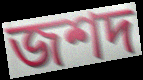
জশদ